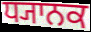
ਧ੍ਯਾਨਕ